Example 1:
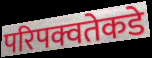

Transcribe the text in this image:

परिपक्वतेकडे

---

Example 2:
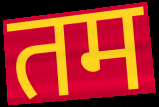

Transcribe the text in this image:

तम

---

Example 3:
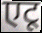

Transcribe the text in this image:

एटू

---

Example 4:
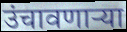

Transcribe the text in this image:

उंचावणाऱ्या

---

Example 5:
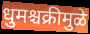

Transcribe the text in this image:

धुमश्चक्रीमुळे